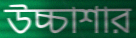
উচ্চাশার